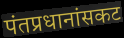
पंतप्रधानांसकट